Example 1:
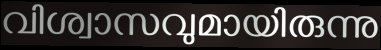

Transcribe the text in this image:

വിശ്വാസവുമായിരുന്നു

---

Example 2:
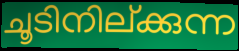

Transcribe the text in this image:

ചൂടിനില്ക്കുന്ന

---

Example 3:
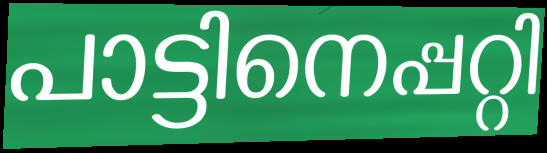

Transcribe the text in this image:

പാട്ടിനെപ്പറ്റി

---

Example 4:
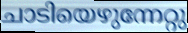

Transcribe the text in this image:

ചാടിയെഴുന്നേറ്റു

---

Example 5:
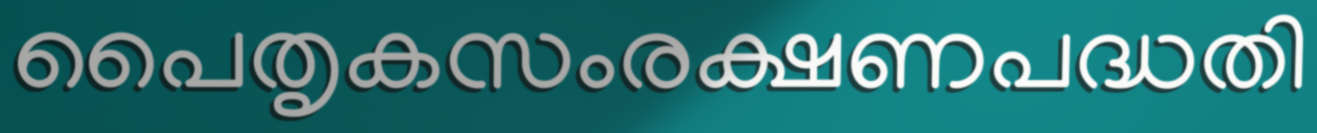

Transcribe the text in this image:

പൈതൃകസംരക്ഷണപദ്ധതി